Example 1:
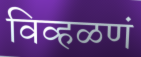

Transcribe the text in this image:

विव्हळणं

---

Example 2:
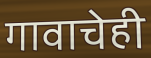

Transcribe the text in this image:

गावाचेही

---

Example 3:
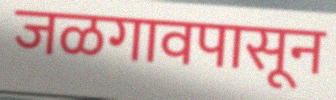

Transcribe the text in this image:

जळगावपासून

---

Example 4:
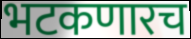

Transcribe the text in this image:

भटकणारच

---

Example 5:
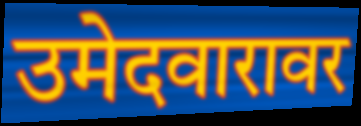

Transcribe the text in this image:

उमेदवारावर